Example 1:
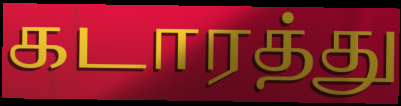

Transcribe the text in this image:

கடாரத்து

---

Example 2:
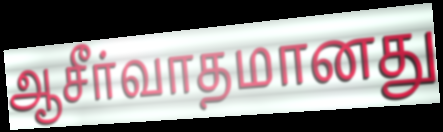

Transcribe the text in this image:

ஆசீர்வாதமானது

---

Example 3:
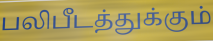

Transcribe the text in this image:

பலிபீடத்துக்கும்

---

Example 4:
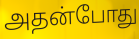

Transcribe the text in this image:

அதன்போது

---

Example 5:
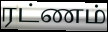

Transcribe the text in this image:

ரட்ணம்